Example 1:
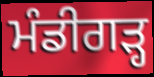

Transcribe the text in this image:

ਮੰਡੀਗੜ੍ਹ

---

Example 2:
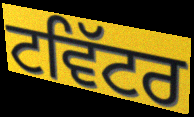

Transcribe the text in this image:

ਟਵਿੱਟਰ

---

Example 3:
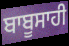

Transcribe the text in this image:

ਬਾਬੂਸਾਹੀ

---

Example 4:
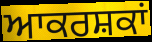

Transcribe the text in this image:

ਆਕਰਸ਼ਕਾਂ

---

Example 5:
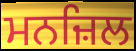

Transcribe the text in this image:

ਮਨਜ਼ਿਲ